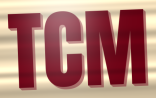
TCM